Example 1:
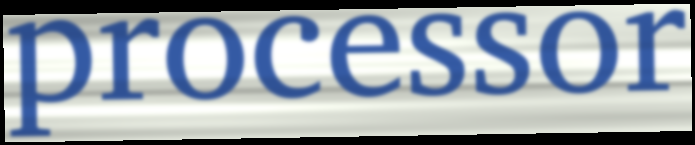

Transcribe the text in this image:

processor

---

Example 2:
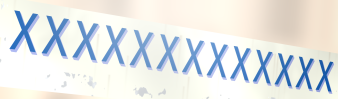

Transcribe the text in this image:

xxxxxxxxxxxxx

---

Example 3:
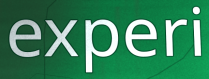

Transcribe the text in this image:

experi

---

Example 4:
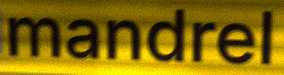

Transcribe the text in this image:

mandrel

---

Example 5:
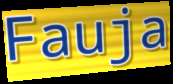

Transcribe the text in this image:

Fauja